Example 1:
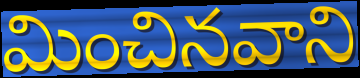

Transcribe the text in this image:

మించినవాని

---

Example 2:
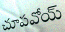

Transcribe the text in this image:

చూపవోయ్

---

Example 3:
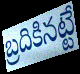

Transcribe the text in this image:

బ్రదికినట్టే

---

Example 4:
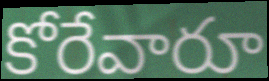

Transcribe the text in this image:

కోరేవారూ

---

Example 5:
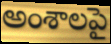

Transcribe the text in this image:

అంశాలపై